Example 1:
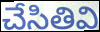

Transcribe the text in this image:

చేసితివి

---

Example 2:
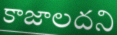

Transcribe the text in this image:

కాజాలదని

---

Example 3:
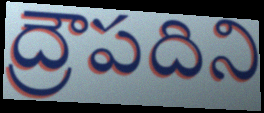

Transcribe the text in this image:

ద్రౌపదిని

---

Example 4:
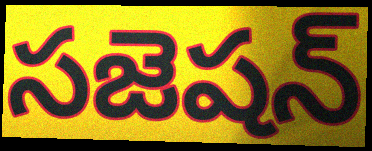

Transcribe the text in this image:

సజెషన్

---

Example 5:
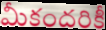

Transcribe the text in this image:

మీకందరికీ